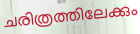
ചരിത്രത്തിലേക്കും